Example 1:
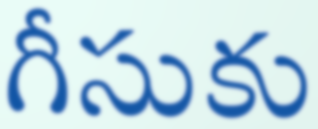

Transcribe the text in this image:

గీసుకు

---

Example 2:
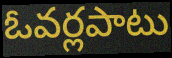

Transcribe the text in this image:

ఓవర్లపాటు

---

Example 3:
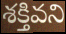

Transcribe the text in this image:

శక్తివని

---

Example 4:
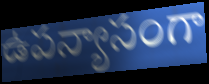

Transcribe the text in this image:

ఉపన్యాసంగా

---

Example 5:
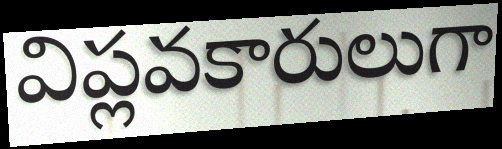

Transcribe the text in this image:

విప్లవకారులుగా